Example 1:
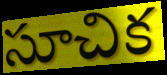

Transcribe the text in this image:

సూచిక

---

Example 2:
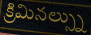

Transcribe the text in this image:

క్రిమినల్స్ను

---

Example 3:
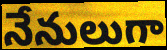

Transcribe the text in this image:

నేనులుగా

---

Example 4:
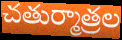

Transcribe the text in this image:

చతుర్మాత్రల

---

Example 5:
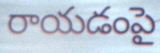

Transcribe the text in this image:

రాయడంపై